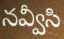
నవ్వీసి